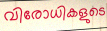
വിരോധികളുടെ